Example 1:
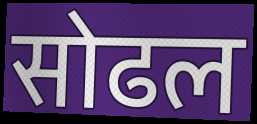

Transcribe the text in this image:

सोढल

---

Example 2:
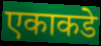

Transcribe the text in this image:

एकाकडे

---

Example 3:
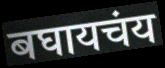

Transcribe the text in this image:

बघायचंय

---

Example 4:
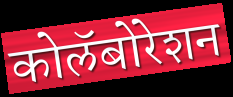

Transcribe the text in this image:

कोलॅबोरेशन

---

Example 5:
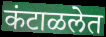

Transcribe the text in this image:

कंटाळलेत